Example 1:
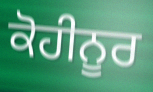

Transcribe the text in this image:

ਕੋਹੀਨੂਰ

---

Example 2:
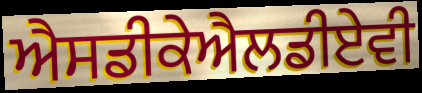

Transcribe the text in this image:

ਐਸਡੀਕੇਐਲਡੀਏਵੀ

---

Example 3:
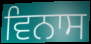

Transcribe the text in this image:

ਵਿਨਾਸ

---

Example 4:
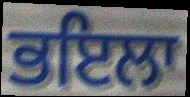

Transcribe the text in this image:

ਭਇਲਾ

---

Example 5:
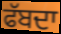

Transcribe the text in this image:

ਫੱਬਦਾ